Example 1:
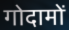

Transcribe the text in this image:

गोदामों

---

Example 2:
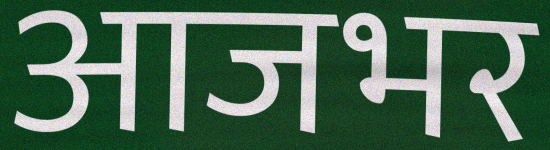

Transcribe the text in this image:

आजभर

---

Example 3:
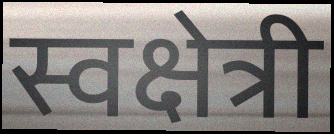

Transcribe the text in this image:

स्वक्षेत्री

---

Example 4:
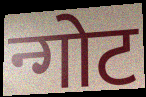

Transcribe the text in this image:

न्गोट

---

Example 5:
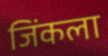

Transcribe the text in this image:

जिंकला